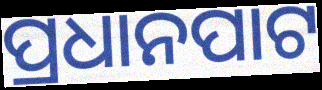
ପ୍ରଧାନପାଟ